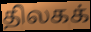
திலகக்